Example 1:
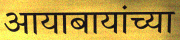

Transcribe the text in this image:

आयाबायांच्या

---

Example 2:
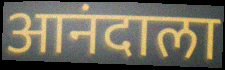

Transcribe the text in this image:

आनंदाला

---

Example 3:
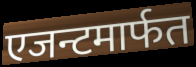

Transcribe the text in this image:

एजन्टमार्फत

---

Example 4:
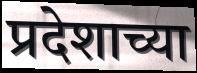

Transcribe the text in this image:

प्रदेशाच्या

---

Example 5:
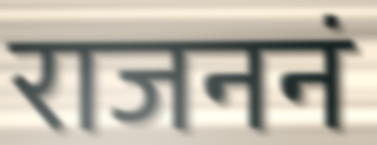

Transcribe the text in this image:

राजननं